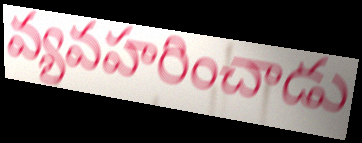
వ్యవహరించాడు